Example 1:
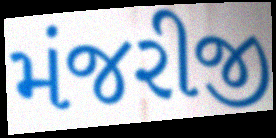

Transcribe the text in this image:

મંજરીજી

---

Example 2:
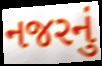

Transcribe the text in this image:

નજરનું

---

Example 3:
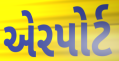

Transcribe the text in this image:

એરપોર્ટ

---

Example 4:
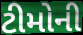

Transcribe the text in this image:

ટીમોની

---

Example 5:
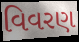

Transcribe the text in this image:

વિવરણ